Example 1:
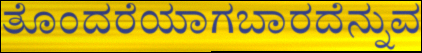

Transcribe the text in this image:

ತೊಂದರೆಯಾಗಬಾರದೆನ್ನುವ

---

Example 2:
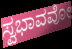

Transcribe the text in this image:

ಸ್ವಭಾವವೋ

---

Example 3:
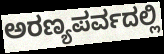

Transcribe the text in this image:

ಅರಣ್ಯಪರ್ವದಲ್ಲಿ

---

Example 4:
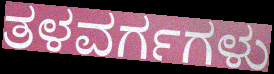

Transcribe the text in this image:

ತಳವರ್ಗಗಳು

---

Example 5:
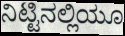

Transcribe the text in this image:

ನಿಟ್ಟಿನಲ್ಲಿಯೂ